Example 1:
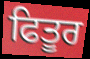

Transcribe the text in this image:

ਫਿਤੂਰ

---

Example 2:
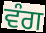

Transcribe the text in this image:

ਵੰਗ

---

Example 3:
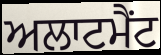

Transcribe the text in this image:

ਅਲਾਟਮੈਂਟ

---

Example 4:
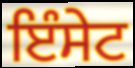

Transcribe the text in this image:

ਇੰਸੇਟ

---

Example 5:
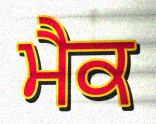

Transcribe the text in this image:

ਮੈਕ